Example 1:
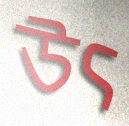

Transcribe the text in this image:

উৎ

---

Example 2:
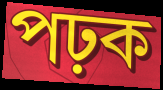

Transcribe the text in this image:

পঢ়ক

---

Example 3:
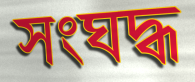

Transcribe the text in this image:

সংঘদ্ধ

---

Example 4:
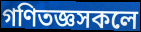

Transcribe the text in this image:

গণিতজ্ঞসকলে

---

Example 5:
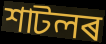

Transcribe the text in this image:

শাটলৰ